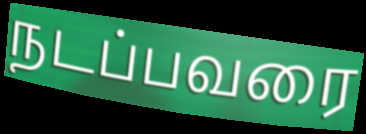
நடப்பவரை